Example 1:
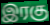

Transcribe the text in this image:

இரகு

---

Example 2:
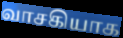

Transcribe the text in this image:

வாசகியாக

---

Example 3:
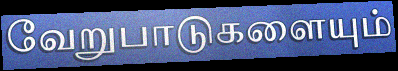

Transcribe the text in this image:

வேறுபாடுகளையும்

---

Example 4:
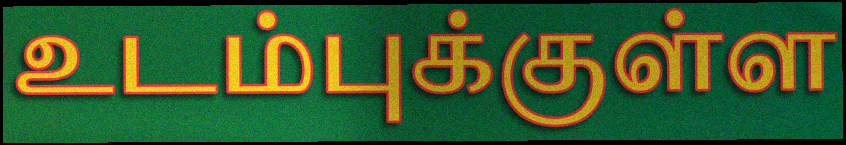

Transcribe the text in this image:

உடம்புக்குள்ள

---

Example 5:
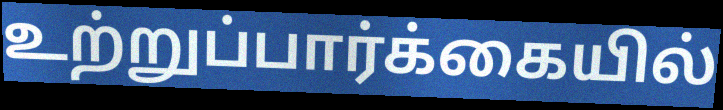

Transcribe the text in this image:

உற்றுப்பார்க்கையில்